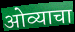
ओव्याचा